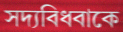
সদ্যবিধবাকে